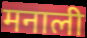
मनाली